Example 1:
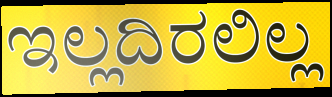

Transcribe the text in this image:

ಇಲ್ಲದಿರಲಿಲ್ಲ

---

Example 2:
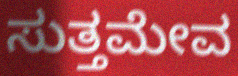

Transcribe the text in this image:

ಸುತ್ತಮೇವ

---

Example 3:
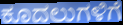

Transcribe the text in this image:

ಕೂದಲುಗಳಿಗೆ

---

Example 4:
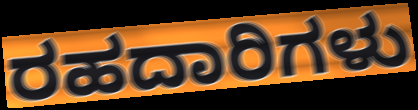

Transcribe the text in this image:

ರಹದಾರಿಗಳು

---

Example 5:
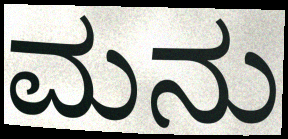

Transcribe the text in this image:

ಮನು